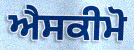
ਐਸਕੀਮੋ